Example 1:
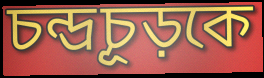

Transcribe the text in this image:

চন্দ্রচূড়কে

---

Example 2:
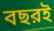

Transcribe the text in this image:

বছরই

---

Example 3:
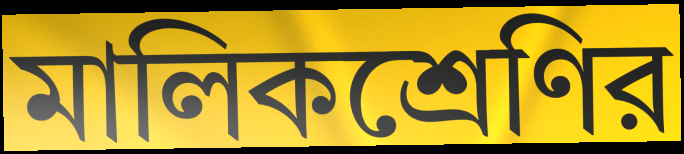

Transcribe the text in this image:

মালিকশ্রেণির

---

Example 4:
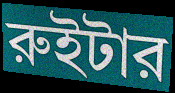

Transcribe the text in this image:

রুইটার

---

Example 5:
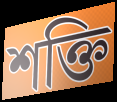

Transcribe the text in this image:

শক্তি